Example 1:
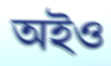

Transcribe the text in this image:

অইও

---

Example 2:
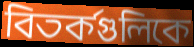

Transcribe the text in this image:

বিতর্কগুলিকে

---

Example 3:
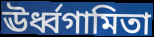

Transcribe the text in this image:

ঊর্ধ্বগামিতা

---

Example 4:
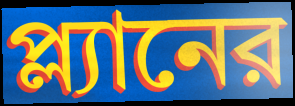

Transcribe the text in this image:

প্ল্যানের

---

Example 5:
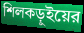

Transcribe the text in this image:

শিলকড়ুইয়ের